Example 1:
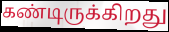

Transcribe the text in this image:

கண்டிருக்கிறது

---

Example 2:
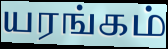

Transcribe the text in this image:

யரங்கம்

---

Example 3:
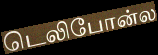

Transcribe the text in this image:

டெலிபோன்ல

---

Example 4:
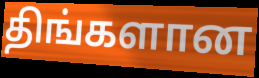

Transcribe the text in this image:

திங்களான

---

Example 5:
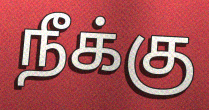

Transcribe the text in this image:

நீக்கு